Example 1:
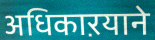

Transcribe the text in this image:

अधिकाऱयाने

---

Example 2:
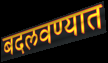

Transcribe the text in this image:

बदलवण्यात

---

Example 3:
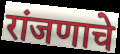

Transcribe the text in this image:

रांजणाचे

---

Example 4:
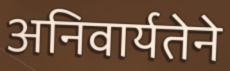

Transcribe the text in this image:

अनिवार्यतेने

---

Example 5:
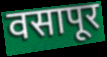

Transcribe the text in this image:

वसापूर